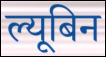
ल्यूबिन